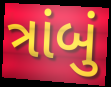
ત્રાંબું